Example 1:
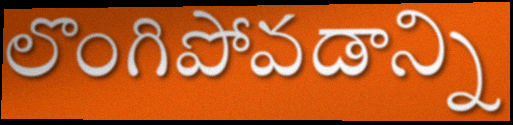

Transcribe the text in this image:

లొంగిపోవడాన్ని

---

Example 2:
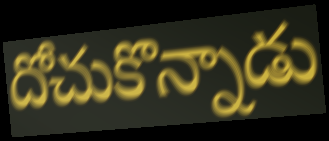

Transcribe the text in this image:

దోచుకొన్నాడు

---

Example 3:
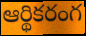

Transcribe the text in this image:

ఆర్థికరంగ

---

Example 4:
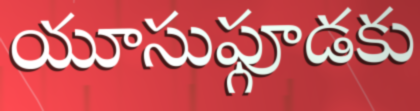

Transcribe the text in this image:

యూసుఫ్గూడకు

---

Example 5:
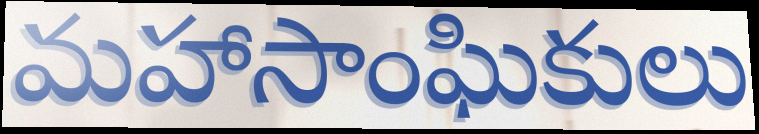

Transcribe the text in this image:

మహాసాంఘికులు